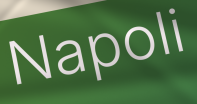
Napoli